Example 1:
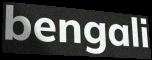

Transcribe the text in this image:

bengali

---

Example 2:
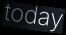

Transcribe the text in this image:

today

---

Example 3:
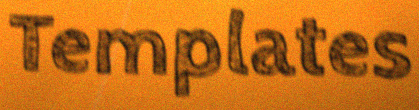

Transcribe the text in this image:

Templates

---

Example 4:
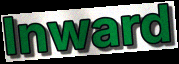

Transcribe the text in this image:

Inward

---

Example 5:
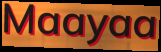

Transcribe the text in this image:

Maayaa